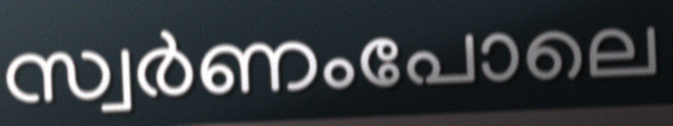
സ്വർണംപോലെ